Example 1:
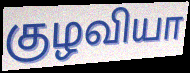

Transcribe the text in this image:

குழவியா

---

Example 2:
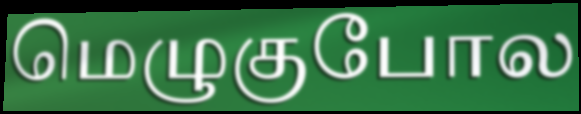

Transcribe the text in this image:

மெழுகுபோல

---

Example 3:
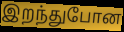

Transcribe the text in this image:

இறந்துபோன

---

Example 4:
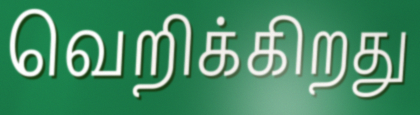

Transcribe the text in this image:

வெறிக்கிறது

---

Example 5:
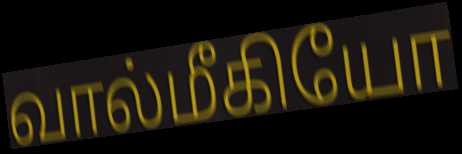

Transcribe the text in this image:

வால்மீகியோ